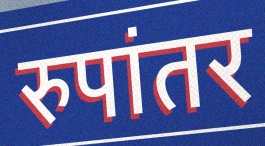
रुपांतर